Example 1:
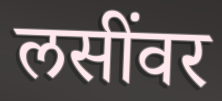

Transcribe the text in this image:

लसींवर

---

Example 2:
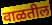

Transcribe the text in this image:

वाळतील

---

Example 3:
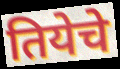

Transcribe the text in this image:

तियेचे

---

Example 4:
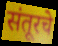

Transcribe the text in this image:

संतूरचे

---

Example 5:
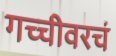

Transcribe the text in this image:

गच्चीवरचं